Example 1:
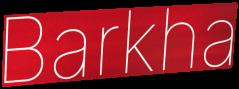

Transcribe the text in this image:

Barkha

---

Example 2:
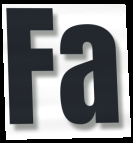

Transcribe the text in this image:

Fa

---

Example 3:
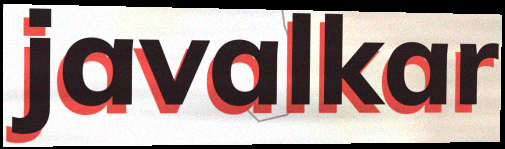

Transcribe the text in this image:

javalkar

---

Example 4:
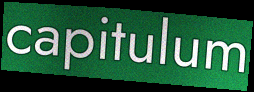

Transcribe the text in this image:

capitulum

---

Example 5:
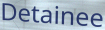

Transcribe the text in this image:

Detainee